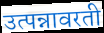
उत्पन्नावरती